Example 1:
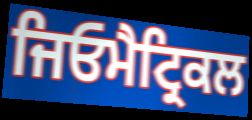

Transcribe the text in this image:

ਜਿਓਮੈਟ੍ਰਿਕਲ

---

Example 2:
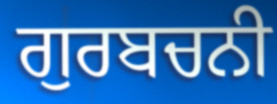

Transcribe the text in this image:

ਗੁਰਬਚਨੀ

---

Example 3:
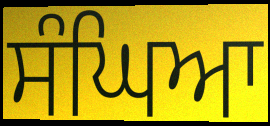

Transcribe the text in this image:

ਸੰਘਿਆ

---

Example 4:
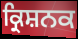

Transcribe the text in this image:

ਕ੍ਰਿਸ਼ਨਕ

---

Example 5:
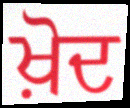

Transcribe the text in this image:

ਖ਼ੋਦ